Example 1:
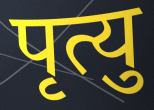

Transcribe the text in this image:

पृत्यु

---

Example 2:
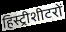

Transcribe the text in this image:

हिस्ट्रीशीटरों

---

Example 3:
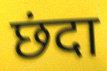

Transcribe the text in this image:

छंदा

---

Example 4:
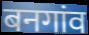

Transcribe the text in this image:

बनगांव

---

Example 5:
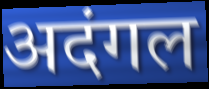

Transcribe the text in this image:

अदंगल